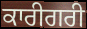
ਕਾਰੀਗਰੀ